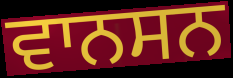
ਵਾਨਸਨ